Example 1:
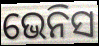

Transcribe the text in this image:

ଭେନିସ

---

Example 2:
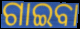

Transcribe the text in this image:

ଗାଇବା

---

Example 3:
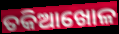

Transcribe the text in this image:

ତକିଆଖୋଳ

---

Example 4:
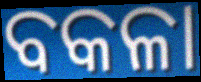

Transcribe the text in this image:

ବକଳା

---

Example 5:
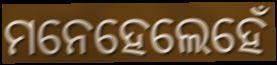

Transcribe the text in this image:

ମନେହେଲେହେଁ